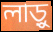
লাড়ু